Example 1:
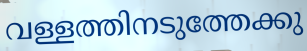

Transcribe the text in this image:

വള്ളത്തിനടുത്തേക്കു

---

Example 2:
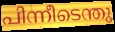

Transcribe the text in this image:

പിന്നീടെന്തു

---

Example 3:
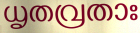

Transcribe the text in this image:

ധൃതവ്രതാഃ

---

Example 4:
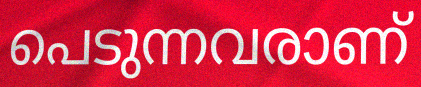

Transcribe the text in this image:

പെടുന്നവരാണ്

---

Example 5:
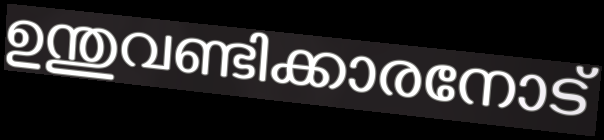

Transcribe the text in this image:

ഉന്തുവണ്ടിക്കാരനോട്